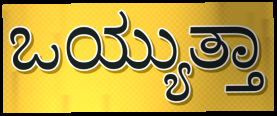
ಒಯ್ಯುತ್ತಾ